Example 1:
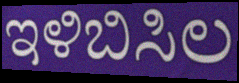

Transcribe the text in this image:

ಇಳಿಬಿಸಿಲ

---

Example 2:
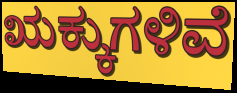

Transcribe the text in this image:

ಋಕ್ಕುಗಳಿವೆ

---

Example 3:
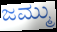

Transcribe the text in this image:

ಜಮ್ಮು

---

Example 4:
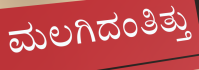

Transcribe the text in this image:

ಮಲಗಿದಂತಿತ್ತು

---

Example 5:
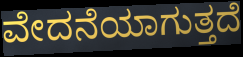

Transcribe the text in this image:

ವೇದನೆಯಾಗುತ್ತದೆ